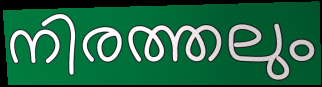
നിരത്തലും